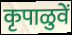
कृपाळुवें